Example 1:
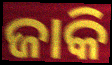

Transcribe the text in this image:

ଜାକି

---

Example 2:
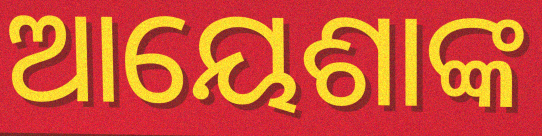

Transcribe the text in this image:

ଆୟେଶାଙ୍କ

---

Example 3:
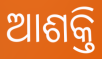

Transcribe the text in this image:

ଆଶକ୍ତି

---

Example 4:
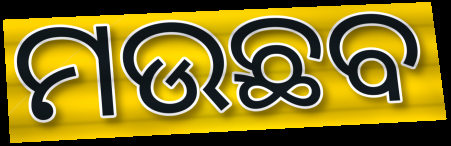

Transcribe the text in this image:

ମଉଛବ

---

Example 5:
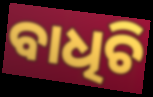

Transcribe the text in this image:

ବାଧିଚି